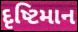
દૃષ્ટિમાન